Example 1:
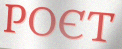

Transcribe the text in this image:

POET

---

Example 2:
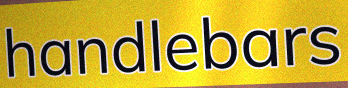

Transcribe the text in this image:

handlebars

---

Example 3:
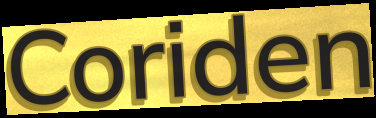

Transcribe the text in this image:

Coriden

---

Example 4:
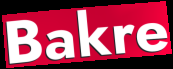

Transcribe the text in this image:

Bakre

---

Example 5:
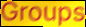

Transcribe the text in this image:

Groups